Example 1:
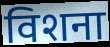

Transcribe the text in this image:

विशना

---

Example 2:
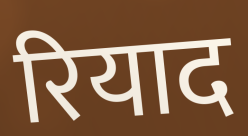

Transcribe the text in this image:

रियाद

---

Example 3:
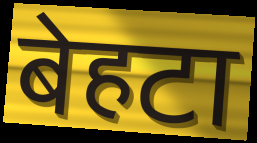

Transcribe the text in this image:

बेहटा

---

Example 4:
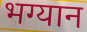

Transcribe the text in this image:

भग्यान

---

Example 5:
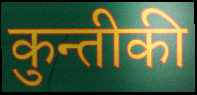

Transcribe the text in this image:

कुन्तीकी